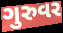
ગુરુવર